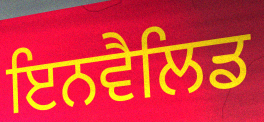
ਇਨਵੈਲਿਡ